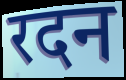
रदन